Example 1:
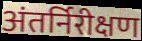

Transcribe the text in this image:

अंतर्निरीक्षण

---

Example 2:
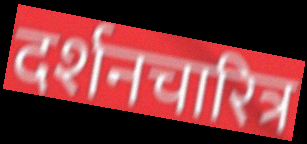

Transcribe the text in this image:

दर्शनचारित्र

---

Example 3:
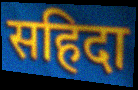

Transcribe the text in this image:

सहिदा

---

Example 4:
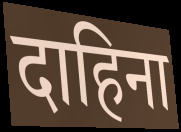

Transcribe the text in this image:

दाहिना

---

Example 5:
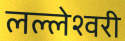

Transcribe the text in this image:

लल्लेश्वरी